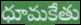
ధూమకేతు